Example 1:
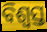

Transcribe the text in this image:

ବିଶ୍ବସ୍ତ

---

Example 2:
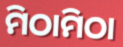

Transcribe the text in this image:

ମିଠାମିଠା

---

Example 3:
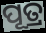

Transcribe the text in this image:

ପୂତ୍ର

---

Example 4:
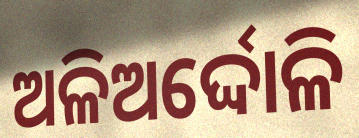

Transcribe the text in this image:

ଅଳିଅର୍ଦ୍ଦୋଳି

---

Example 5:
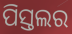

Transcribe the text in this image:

ପିସ୍ତଲର